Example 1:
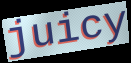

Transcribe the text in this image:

juicy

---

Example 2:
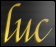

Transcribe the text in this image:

luc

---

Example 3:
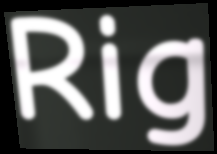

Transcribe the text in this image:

Rig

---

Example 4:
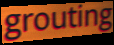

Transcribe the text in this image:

grouting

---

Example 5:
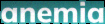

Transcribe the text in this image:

anemia